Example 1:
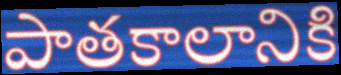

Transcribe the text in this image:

పాతకాలానికి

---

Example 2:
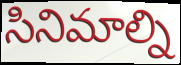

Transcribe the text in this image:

సినిమాల్ని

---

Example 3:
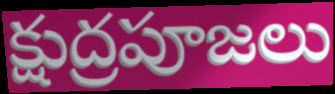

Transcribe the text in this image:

క్షుద్రపూజలు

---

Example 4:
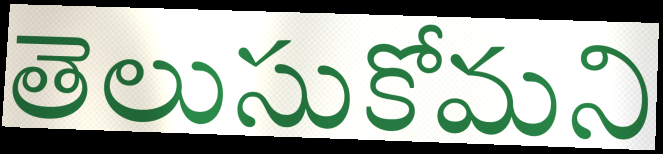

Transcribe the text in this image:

తెలుసుకోమని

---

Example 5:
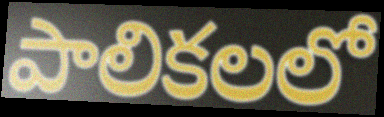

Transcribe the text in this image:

పాలికలలో